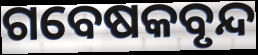
ଗବେଷକବୃନ୍ଦ